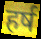
हर्ष